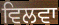
ਵਿਲਵਾ